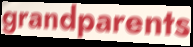
grandparents